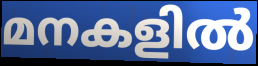
മനകളിൽ